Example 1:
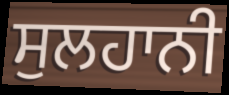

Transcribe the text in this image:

ਸੁਲਹਾਨੀ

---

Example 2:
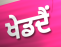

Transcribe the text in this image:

ਖੇਡਦੈਂ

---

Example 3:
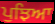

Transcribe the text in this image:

ਪੁਝਿਆ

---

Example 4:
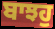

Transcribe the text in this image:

ਬਾਝਹੁ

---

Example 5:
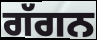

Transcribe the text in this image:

ਗੱਗਨ